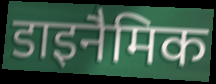
डाइनैमिक